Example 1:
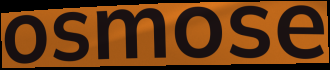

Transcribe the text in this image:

osmose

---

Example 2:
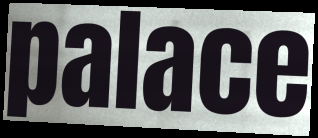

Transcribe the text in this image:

palace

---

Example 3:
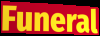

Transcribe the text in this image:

Funeral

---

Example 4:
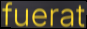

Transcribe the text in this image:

fuerat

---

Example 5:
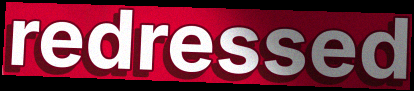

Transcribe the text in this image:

redressed